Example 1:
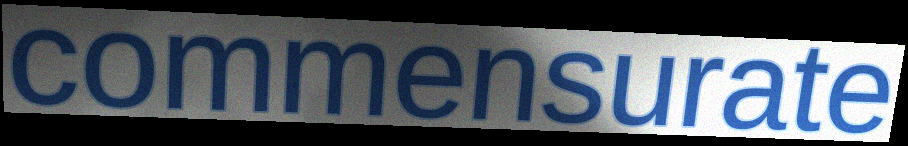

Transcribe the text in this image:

commensurate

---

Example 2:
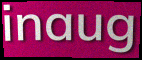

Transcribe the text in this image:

inaug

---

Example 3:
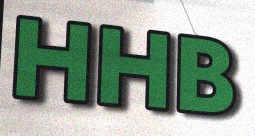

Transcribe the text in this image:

HHB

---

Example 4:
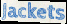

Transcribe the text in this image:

Jackets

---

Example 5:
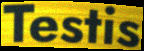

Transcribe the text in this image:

Testis